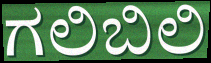
ಗಲಿಬಿಲಿ